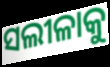
ସଲୀଳାକୁ